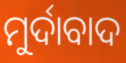
ମୁର୍ଦାବାଦ